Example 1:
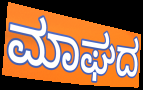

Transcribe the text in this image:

ಮಾಘದ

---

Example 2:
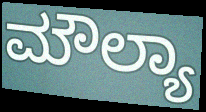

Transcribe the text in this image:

ಮೌಲ್ಯಾ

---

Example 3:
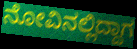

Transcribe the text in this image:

ನೋವಿನಲ್ಲಿದ್ದಾಗ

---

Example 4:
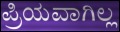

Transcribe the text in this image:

ಪ್ರಿಯವಾಗಿಲ್ಲ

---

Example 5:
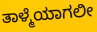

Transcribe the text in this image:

ತಾಳ್ಮೆಯಾಗಲೀ